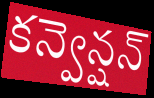
కన్వెన్షన్